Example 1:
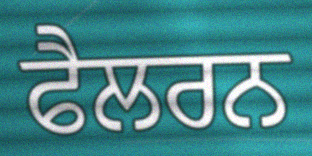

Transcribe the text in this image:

ਫੈਲਰਨ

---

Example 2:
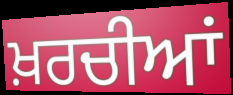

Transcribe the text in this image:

ਖ਼ਰਚੀਆਂ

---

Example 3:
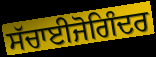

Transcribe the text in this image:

ਸੱਚਾਈਜੋਗਿੰਦਰ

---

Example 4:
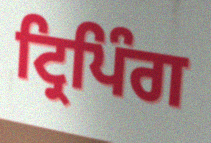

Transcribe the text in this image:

ਟ੍ਰਿਪਿੰਗ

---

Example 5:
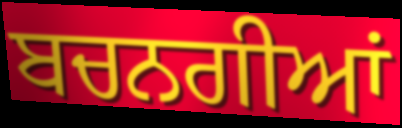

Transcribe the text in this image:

ਬਚਨਗੀਆਂ